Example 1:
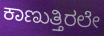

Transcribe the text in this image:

ಕಾಣುತ್ತಿರಲೇ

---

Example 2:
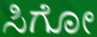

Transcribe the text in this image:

ಸಿಗೋ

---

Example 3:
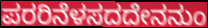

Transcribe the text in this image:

ಪರರಿನೆಳಸದದೇನನುಂ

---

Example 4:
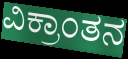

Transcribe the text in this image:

ವಿಕ್ರಾಂತನ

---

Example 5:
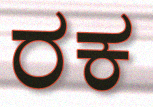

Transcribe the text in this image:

ರಕ